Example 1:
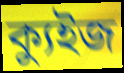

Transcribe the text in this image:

ক্যুইজ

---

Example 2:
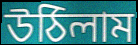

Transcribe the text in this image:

উঠিলাম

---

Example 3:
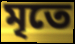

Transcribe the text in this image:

মৃতে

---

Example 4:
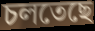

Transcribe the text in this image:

চলতেছে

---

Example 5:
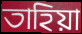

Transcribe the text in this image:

তাহিয়া